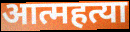
आत्महत्या